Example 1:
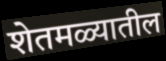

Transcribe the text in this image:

शेतमळ्यातील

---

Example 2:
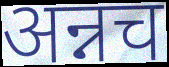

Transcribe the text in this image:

अन्नच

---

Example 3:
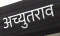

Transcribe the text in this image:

अच्युतराव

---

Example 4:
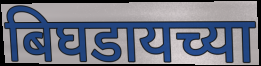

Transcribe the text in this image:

बिघडायच्या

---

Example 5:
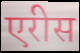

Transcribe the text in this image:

एरीस